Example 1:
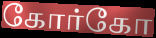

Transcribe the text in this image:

கோர்கோ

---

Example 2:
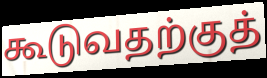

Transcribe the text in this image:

கூடுவதற்குத்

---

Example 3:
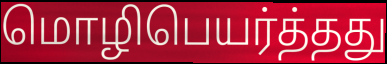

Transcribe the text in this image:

மொழிபெயர்த்தது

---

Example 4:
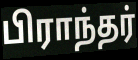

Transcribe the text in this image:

பிராந்தர்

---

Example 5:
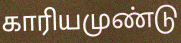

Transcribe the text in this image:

காரியமுண்டு